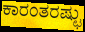
ಕಾರಂತರಷ್ಟು